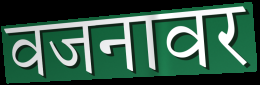
वजनावर